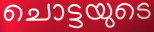
ചൊട്ടയുടെ